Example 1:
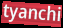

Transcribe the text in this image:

tyanchi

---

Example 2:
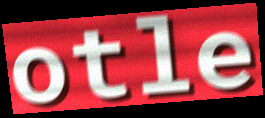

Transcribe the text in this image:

otle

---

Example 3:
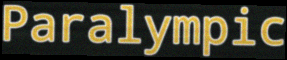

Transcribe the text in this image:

Paralympic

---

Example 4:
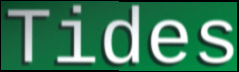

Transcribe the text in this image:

Tides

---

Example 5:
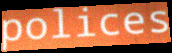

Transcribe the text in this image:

polices